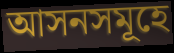
আসনসমূহে